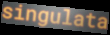
singulata